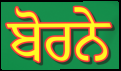
ਬੋਰਨੇ